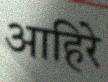
आहिरे